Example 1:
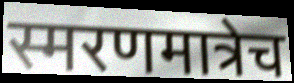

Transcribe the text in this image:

स्मरणमात्रेच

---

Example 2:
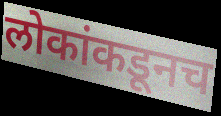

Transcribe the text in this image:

लोकांकडूनच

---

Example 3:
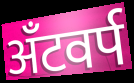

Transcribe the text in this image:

अँटवर्प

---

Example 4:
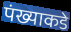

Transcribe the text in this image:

पंख्याकडे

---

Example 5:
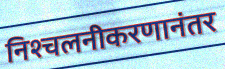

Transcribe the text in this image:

निश्चलनीकरणानंतर